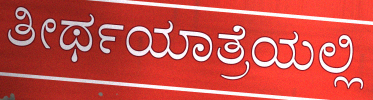
ತೀರ್ಥಯಾತ್ರೆಯಲ್ಲಿ